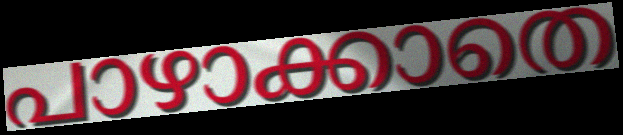
പാഴാക്കാതെ